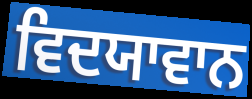
ਵਿਦਯਾਵਾਨ